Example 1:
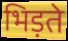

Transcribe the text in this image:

भिड़ते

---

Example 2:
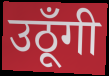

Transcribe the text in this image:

उठूँगी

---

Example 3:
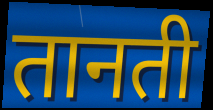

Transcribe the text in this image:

तानती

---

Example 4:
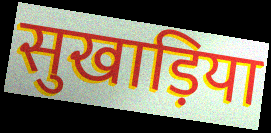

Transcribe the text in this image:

सुखाड़िया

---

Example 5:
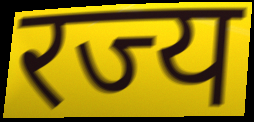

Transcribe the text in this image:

रज्य